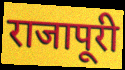
राजापूरी